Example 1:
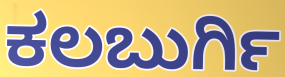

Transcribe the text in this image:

ಕಲಬುರ್ಗಿ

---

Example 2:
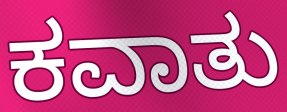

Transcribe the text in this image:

ಕವಾತು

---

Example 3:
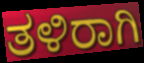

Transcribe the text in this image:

ತಳಿರಾಗಿ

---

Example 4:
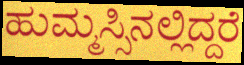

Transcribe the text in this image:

ಹುಮ್ಮಸ್ಸಿನಲ್ಲಿದ್ದರೆ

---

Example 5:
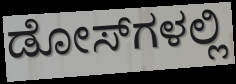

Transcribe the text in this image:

ಡೋಸ್‌ಗಳಲ್ಲಿ